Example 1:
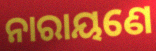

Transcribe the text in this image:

ନାରାୟଣେ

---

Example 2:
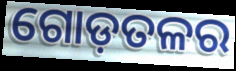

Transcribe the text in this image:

ଗୋଡ଼ତଳର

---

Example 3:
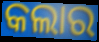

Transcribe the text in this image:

କଲାର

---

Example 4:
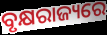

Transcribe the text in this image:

ବୃକ୍ଷରାଜ୍ୟରେ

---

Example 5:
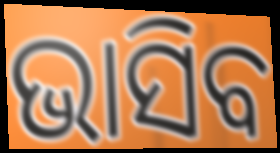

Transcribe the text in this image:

ଭାସିବ